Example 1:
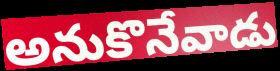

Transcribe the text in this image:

అనుకొనేవాడు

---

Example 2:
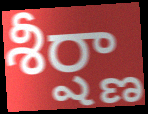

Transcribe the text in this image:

శీర్ష్ణా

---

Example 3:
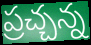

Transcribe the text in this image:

ప్రచ్చన్న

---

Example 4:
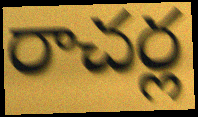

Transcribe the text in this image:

రాచర్ల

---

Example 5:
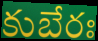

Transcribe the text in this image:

కుబేరః